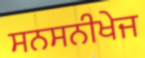
ਸਨਸਨੀਖੇਜ